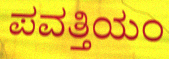
ಪವತ್ತಿಯಂ